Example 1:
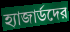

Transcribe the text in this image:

হ্যাজার্ডদের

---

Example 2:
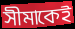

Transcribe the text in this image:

সীমাকেই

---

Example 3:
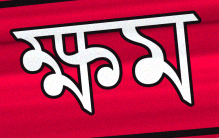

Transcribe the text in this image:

ক্ষম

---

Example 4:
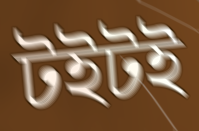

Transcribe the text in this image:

টইটই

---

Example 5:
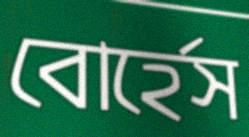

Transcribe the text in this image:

বোর্হেস